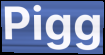
Pigg